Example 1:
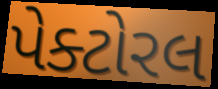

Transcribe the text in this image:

પેક્ટોરલ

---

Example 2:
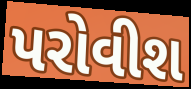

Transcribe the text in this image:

પરોવીશ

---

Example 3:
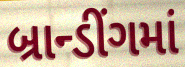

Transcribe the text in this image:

બ્રાન્ડીંગમાં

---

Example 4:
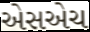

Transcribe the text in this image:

એસએચ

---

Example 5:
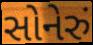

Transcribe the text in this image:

સોનેરું